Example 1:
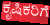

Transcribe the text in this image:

ಕೃಷಿಕರಿಗೆ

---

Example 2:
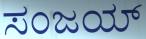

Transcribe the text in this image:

ಸಂಜಯ್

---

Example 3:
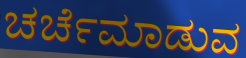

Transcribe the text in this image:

ಚರ್ಚೆಮಾಡುವ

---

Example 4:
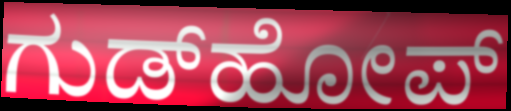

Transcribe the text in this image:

ಗುಡ್‌ಹೋಪ್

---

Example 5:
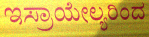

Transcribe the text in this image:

ಇಸ್ರಾಯೇಲ್ಯರಿಂದ